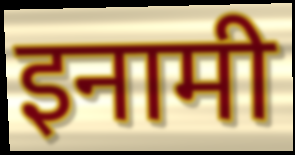
इनामी